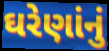
ઘરેણાંનું